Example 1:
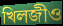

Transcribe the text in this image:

খিলজীও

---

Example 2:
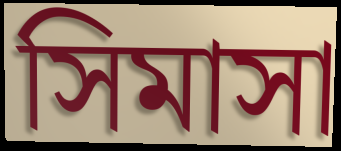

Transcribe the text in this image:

সিমাসা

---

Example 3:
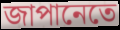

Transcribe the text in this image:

জাপানেতে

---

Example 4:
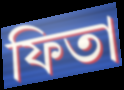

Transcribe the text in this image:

ফিতা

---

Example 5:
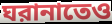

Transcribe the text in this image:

ঘরানাতেও